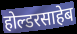
होल्डरसाहेब